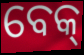
ବେକ୍